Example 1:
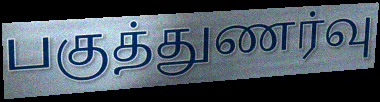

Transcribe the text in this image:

பகுத்துணர்வு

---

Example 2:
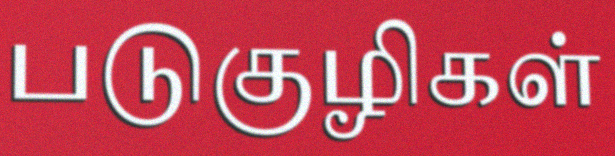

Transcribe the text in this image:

படுகுழிகள்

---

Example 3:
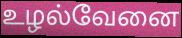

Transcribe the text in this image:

உழல்வேனை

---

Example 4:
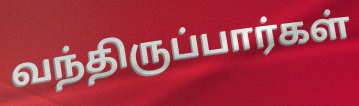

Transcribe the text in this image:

வந்திருப்பார்கள்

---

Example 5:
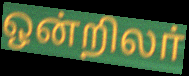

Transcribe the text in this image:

ஒன்றிலர்